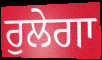
ਰੁਲੇਗਾ